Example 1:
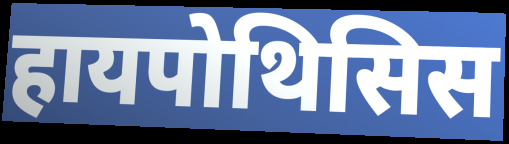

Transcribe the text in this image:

हायपोथिसिस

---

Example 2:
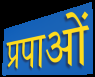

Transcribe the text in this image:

प्रपाओं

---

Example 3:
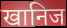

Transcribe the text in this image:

खानिज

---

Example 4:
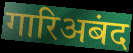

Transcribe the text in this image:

गारिअबंद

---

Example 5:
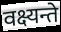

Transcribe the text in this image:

वक्ष्यन्ते